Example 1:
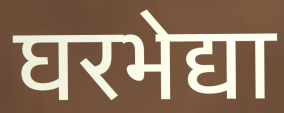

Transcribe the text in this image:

घरभेद्या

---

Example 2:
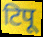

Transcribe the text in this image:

टिपू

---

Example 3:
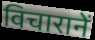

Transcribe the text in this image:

विचारानें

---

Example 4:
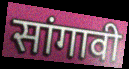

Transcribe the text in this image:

सांगावी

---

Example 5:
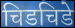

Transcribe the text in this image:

चिडचिडे